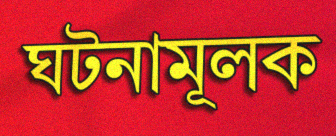
ঘটনামূলক